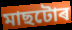
মাছটোৰ